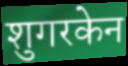
शुगरकेन